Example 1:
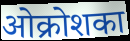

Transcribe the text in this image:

ओक्रोशका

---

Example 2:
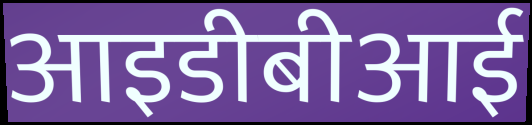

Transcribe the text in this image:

आइडीबीआई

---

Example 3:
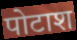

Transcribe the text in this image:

पोटाश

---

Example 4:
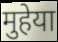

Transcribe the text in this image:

मुहेया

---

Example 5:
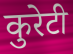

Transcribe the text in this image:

कुरेटी